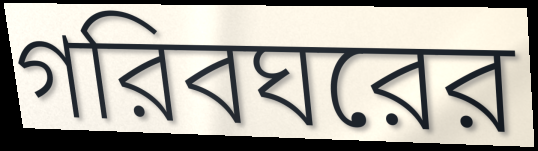
গরিবঘরের